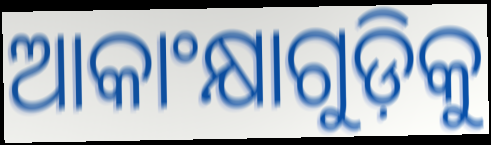
ଆକାଂକ୍ଷାଗୁଡ଼ିକୁ